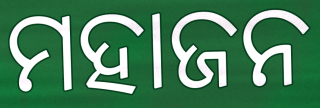
ମହାଜନ